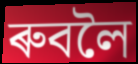
ৰুবলৈ